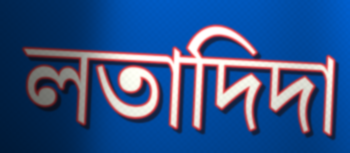
লতাদিদা